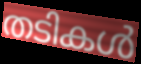
തടികൾ